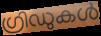
ഗ്രിഡുകൾ